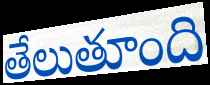
తేలుతూంది